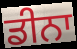
ਡੀਨਾ